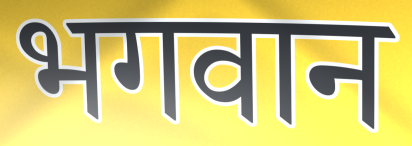
भगवान